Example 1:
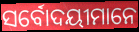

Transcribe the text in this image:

ସର୍ବୋଦୟୀମାନେ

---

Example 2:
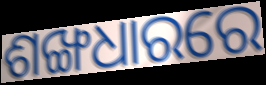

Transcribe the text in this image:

ଶଙ୍ଖଧାରରେ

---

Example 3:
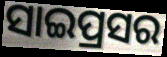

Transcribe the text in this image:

ସାଇପ୍ରସର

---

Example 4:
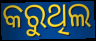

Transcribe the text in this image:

କରୁଥିଲ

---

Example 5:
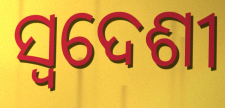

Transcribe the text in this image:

ସ୍ଵଦେଶୀ